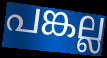
പങ്കല്ല